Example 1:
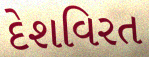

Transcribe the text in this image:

દેશવિરત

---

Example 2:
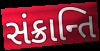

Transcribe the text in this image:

સંક્રાન્તિ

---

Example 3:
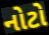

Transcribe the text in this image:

નોટો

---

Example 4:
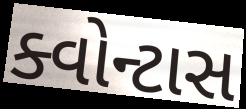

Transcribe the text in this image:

ક્વોન્ટાસ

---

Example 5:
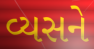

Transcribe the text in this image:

વ્યસને